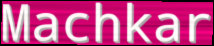
Machkar